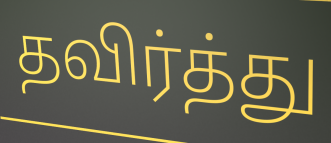
தவிர்த்து